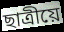
ছাত্ৰীয়ে